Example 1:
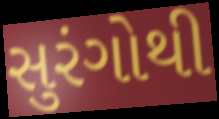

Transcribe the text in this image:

સુરંગોથી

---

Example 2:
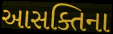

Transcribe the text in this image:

આસક્તિના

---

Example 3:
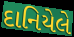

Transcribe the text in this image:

દાનિયેલે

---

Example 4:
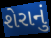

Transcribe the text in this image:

શેરાનું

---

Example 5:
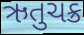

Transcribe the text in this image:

ઋતુચક્ર